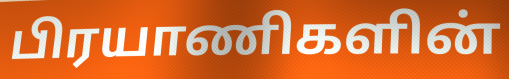
பிரயாணிகளின்